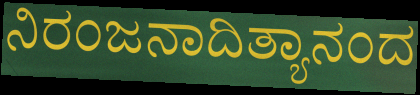
ನಿರಂಜನಾದಿತ್ಯಾನಂದ